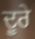
ਦੂਰੇ